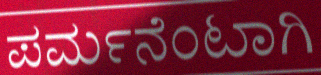
ಪರ್ಮನೆಂಟಾಗಿ